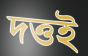
দত্তই